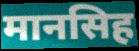
मानसिह